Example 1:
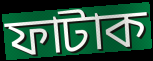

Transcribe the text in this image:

ফাটাক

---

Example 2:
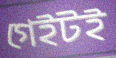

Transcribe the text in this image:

গেইটই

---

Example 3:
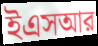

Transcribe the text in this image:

ইএসআর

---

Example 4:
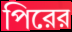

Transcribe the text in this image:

পিরের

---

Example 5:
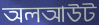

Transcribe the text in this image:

অলআউট